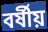
বৰ্ষীয়